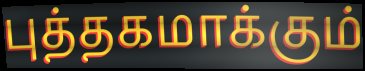
புத்தகமாக்கும்